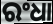
ରଂଧା